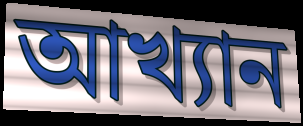
আখ্যান